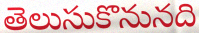
తెలుసుకొనునది